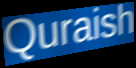
Quraish